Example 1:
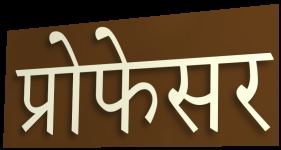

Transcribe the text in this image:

प्रोफेसर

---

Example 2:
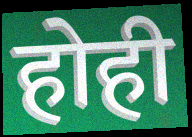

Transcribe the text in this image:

होही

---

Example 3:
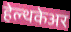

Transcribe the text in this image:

हेल्थकेअर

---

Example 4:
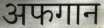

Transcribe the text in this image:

अफगान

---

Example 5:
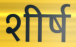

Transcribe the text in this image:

शीर्ष